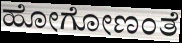
ಹೋಗೋಣಂತೆ